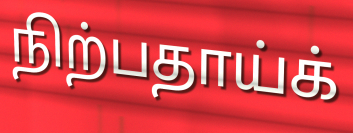
நிற்பதாய்க்